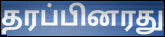
தரப்பினரது